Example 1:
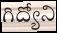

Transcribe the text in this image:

గిద్యోని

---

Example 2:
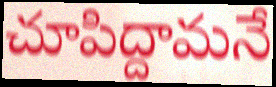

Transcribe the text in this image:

చూపిద్దామనే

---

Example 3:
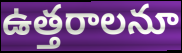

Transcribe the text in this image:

ఉత్తరాలనూ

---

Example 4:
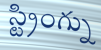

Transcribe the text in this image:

స్ట్రింగ్ను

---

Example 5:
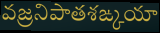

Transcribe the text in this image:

వజ్రనిపాతశఙ్కయా